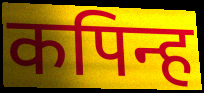
कपिन्ह